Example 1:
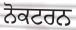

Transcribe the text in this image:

ਨੋਕਟਰਨ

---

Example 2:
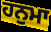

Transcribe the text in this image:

ਹਨੁਮਾ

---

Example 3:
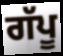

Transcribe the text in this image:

ਗੱਪੂ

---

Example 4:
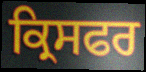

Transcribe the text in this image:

ਕ੍ਰਿਸਫਰ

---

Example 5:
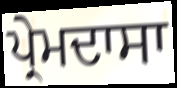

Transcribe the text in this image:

ਪ੍ਰੇਮਦਾਸਾ